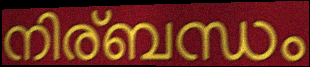
നിര്ബന്ധം